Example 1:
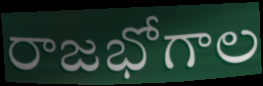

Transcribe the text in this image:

రాజభోగాల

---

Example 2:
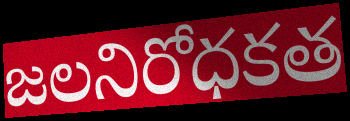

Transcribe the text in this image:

జలనిరోధకత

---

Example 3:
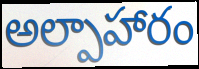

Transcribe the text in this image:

అల్పాహారం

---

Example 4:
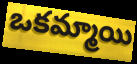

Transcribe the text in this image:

ఒకమ్మాయి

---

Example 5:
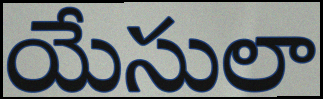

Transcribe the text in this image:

యేసులా